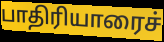
பாதிரியாரைச்